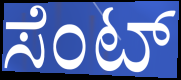
ಸೆಂಟ್